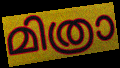
മിത്രാ